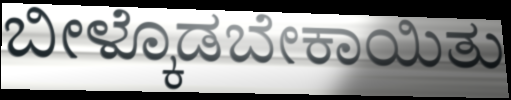
ಬೀಳ್ಕೊಡಬೇಕಾಯಿತು